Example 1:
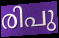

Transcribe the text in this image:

രിപു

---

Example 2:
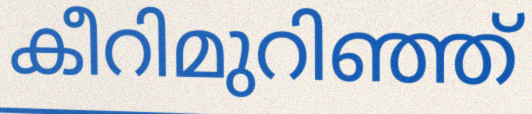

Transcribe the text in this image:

കീറിമുറിഞ്ഞ്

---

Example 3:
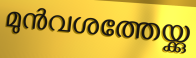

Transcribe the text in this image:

മുൻവശത്തേയ്ക്കു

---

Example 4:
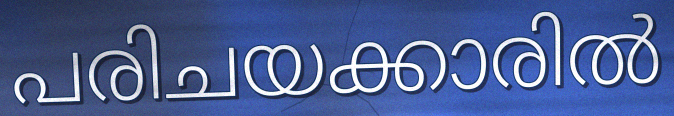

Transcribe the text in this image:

പരിചയക്കാരിൽ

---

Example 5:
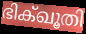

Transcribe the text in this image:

ഭിക്ഖൂതി